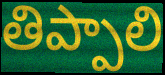
తిప్పాలి